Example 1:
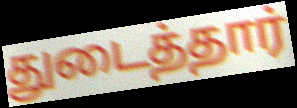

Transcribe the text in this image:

துடைத்தார்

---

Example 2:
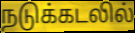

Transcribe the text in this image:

நடுக்கடலில்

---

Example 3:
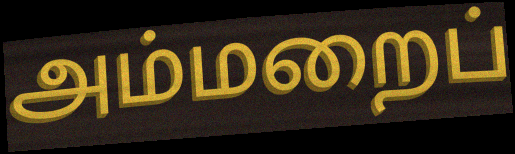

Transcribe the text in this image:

அம்மறைப்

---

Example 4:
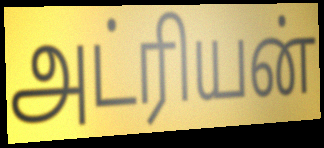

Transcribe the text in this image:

அட்ரியன்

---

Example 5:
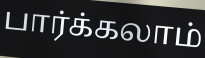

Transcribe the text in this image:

பார்க்கலாம்